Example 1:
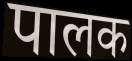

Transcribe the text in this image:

पालक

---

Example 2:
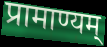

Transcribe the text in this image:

प्रामाण्यम्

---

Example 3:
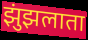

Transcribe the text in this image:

झुंझलाता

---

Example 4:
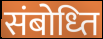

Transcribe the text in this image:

संबोध्ति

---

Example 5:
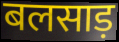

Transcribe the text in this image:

बलसाड़